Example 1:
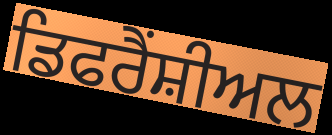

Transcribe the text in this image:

ਡਿਫਰੈਂਸ਼ੀਅਲ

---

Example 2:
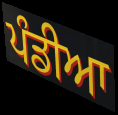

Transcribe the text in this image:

ਪੰਡੀਆ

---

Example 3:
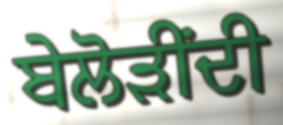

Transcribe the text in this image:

ਬੇਲੋੜੀਂਦੀ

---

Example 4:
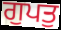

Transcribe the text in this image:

ਗੁਪਤੁ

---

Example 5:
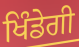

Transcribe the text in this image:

ਖਿੰਡੇਗੀ